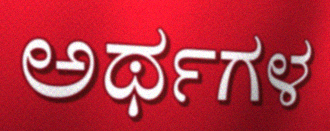
ಅರ್ಥಗಳ